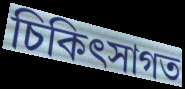
চিকিৎসাগত